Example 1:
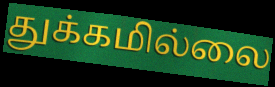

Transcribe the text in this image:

துக்கமில்லை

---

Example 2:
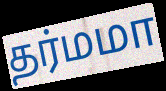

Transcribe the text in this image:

தர்மமா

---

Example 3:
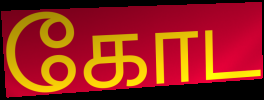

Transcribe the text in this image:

கோட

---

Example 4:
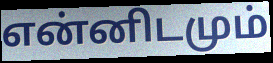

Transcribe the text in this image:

என்னிடமும்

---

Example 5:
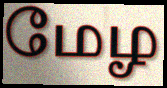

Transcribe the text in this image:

மேழ